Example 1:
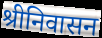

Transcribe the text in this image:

श्रीनिवासन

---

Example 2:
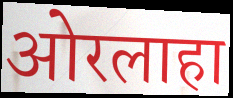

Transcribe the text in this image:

ओरलाहा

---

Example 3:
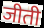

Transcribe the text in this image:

जीती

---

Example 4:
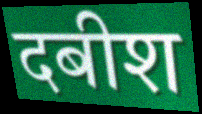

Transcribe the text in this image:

दबीश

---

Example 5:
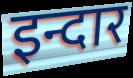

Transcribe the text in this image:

इन्दार